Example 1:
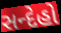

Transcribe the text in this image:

સન્દેહો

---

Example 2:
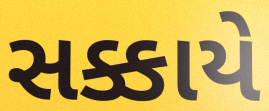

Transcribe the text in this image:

સક્કાયે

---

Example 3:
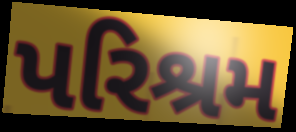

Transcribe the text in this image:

પરિશ્રમ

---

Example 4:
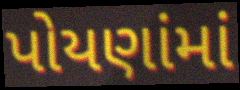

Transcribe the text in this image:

પોયણાંમાં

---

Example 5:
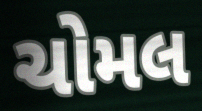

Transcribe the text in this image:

ચોમલ